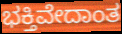
ಭಕ್ತಿವೇದಾಂತ